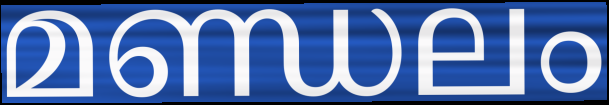
മണ്ഡലം